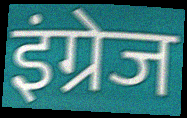
इंग्रेज